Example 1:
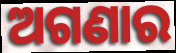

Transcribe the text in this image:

ଅଗଣାର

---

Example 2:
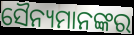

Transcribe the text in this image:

ସୈନ୍ୟମାନଙ୍କର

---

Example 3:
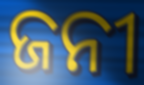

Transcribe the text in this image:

ଜନୀ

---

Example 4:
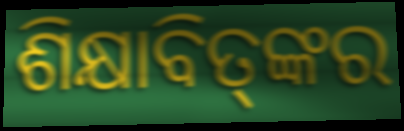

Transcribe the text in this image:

ଶିକ୍ଷାବିତ୍‌ଙ୍କର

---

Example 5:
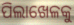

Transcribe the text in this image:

ପିଲାଖେଳକୁ